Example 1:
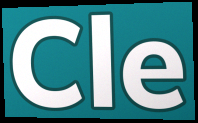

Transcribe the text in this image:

Cle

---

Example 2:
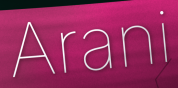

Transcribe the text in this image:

Arani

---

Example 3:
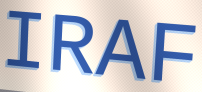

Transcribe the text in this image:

IRAF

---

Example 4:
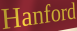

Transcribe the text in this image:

Hanford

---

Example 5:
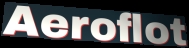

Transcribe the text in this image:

Aeroflot